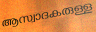
ആസ്വാദകരുള്ള